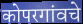
कोपरगांवचे